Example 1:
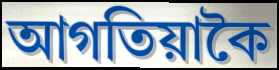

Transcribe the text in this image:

আগতিয়াকৈ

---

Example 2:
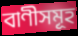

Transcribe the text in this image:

বাণীসমূহ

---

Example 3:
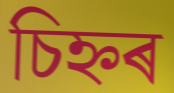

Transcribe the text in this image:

চিহ্নৰ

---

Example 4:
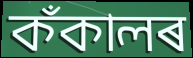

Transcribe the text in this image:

কঁকালৰ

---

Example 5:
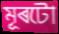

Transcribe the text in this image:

মূৰটো